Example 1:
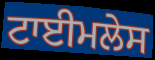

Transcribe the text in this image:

ਟਾਈਮਲੇਸ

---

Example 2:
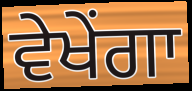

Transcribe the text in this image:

ਵੇਖੇਂਗਾ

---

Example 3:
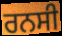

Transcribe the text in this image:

ਰਨਸੀ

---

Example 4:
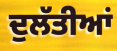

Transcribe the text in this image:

ਦੁਲੱਤੀਆਂ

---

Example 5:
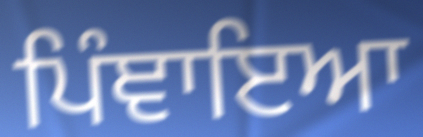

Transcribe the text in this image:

ਪਿੰਞਾਇਆ